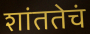
शांततेचं